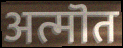
अत्मॊत